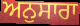
ਅਨੁਸਾਰਾ